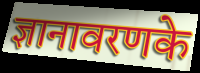
ज्ञानावरणके